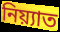
নিয়্যাত